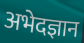
अभेदज्ञान